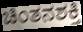
ಚಿಂತನಶಕ್ತಿ